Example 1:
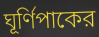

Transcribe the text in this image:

ঘূর্ণিপাকের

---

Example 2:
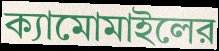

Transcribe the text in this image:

ক্যামোমাইলের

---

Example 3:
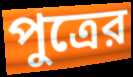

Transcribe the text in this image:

পুত্রের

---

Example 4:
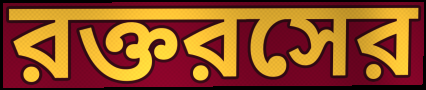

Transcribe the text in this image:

রক্তরসের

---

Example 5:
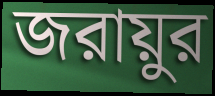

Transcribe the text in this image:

জরায়ুর